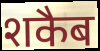
शकैब